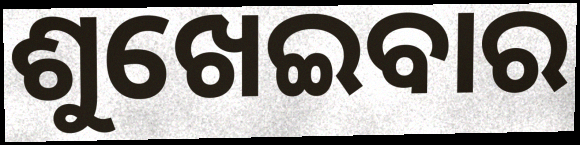
ଶୁଖେଇବାର